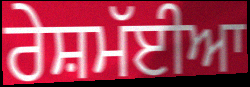
ਰੇਸ਼ਮੱਈਆ